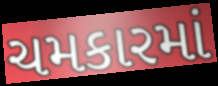
ચમકારમાં